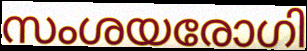
സംശയരോഗി